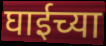
घाईच्या